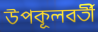
উপকূলবর্তী